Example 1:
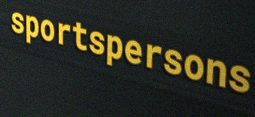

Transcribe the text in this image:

sportspersons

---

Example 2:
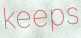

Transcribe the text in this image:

keeps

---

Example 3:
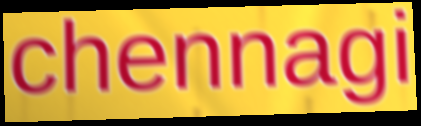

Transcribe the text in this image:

chennagi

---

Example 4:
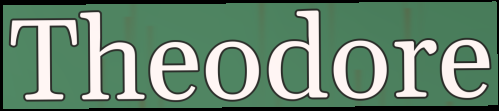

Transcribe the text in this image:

Theodore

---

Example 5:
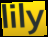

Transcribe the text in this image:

lily